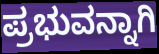
ಪ್ರಭುವನ್ನಾಗಿ